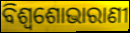
ବିଶ୍ୱଶୋଭାରାଣୀ